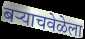
बर्‍याचवेळेला